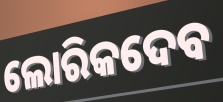
ଲୋରିକଦେବ